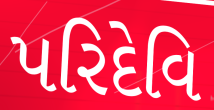
પરિદેવિ